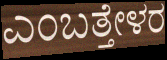
ಎಂಬತ್ತೇಳರ